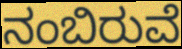
ನಂಬಿರುವೆ